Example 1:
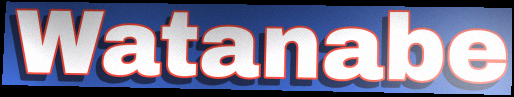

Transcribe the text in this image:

Watanabe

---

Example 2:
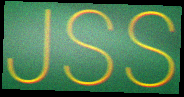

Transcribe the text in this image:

JSS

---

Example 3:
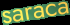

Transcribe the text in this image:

saraca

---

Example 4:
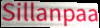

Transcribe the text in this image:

Sillanpaa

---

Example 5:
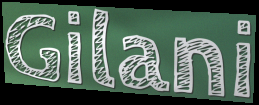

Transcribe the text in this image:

Gilani